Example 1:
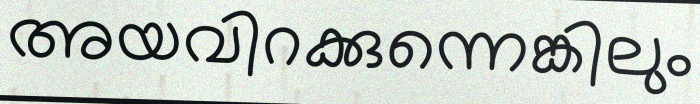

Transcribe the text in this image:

അയവിറക്കുന്നെങ്കിലും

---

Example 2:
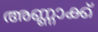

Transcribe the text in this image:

അണ്ണാക്ക്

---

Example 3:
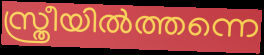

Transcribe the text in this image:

സ്ത്രീയിൽത്തന്നെ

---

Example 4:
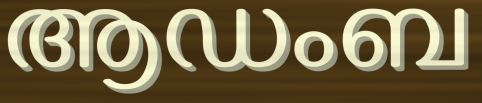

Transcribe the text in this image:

ആഡംബ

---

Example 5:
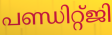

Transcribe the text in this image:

പണ്ഡിറ്റ്ജി